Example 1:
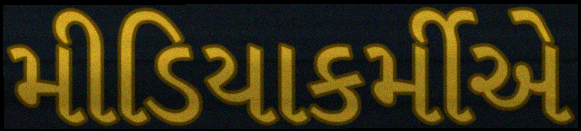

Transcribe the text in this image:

મીડિયાકર્મીએ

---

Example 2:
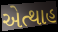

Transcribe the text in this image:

એત્થાહ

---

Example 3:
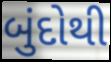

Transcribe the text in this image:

બુંદોથી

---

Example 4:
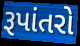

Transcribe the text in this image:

રૂપાંતરો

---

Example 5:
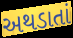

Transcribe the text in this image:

અથડાતાં